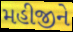
મહીજીને